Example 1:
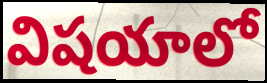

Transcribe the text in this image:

విషయాలో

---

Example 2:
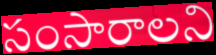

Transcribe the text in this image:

సంసారాలని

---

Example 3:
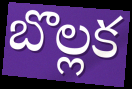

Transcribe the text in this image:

బొల్లక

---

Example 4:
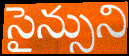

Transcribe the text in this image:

సైన్సుని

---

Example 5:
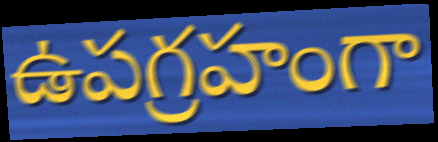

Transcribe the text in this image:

ఉపగ్రహంగా